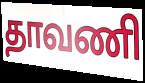
தாவணி